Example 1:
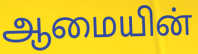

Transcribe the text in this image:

ஆமையின்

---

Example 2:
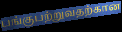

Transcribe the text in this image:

பங்குபற்றுவதற்கான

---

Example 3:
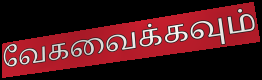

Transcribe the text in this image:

வேகவைக்கவும்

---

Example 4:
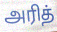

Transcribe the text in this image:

அரித்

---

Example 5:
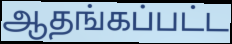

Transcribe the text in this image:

ஆதங்கப்பட்ட